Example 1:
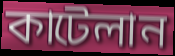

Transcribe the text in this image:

কাটেলান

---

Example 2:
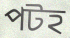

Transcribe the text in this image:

পটহ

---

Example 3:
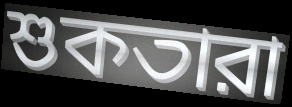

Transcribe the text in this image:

শুকতারা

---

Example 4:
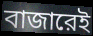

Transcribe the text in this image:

বাজারেই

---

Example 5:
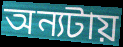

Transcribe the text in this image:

অন্যটায়